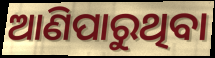
ଆଣିପାରୁଥିବା